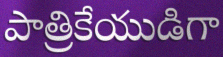
పాత్రికేయుడిగా